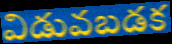
విడువబడక